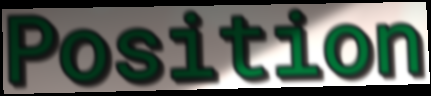
Position